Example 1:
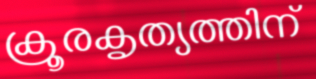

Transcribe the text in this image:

ക്രൂരകൃത്യത്തിന്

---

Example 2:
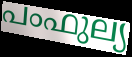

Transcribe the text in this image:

പംഫുല്യ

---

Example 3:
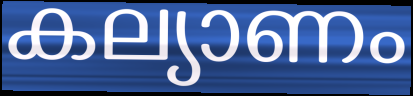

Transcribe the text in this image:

കല്യാണം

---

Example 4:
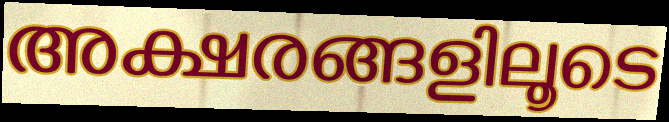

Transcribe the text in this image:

അക്ഷരങ്ങളിലൂടെ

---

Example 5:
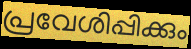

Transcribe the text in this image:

പ്രവേശിപ്പിക്കും